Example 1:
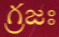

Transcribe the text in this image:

గ్రజః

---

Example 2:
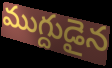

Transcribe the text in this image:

ముగ్దుడైన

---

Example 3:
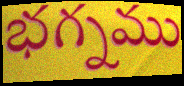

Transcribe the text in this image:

భగ్నము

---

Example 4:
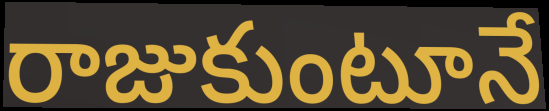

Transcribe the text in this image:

రాజుకుంటూనే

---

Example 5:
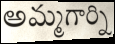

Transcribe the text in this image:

అమ్మగార్ని